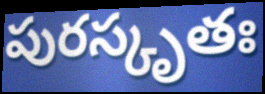
పురస్కృతః